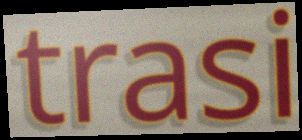
trasi